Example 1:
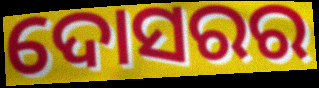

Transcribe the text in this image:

ଦୋସରର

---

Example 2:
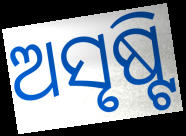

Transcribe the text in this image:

ଅସୃଷ୍ଟି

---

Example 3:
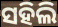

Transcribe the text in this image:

ସହିଲି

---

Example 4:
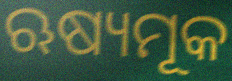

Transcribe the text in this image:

ଋଷ୍ୟମୂକ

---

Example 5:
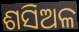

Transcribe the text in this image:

ଶସିଅଳ